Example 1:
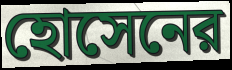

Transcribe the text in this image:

হোসেনের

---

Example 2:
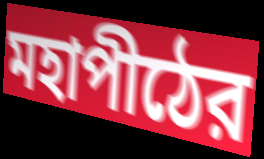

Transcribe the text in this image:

মহাপীঠের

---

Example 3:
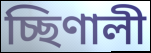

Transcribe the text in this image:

চ্ছিণালী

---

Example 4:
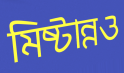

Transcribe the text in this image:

মিষ্টান্নও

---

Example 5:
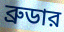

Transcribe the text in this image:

ব্রুডার